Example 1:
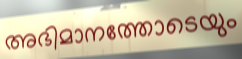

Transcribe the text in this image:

അഭിമാനത്തോടെയും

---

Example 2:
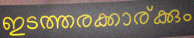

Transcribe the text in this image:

ഇടത്തരക്കാര്ക്കും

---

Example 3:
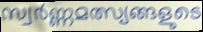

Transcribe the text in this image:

സ്വർണ്ണമത്സ്യങ്ങളുടെ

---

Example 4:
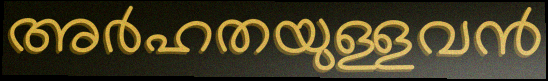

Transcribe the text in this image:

അർഹതയുള്ളവൻ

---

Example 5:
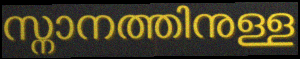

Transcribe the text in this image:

സ്നാനത്തിനുള്ള